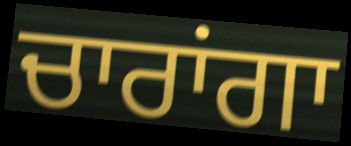
ਚਾਰਾਂਗਾ